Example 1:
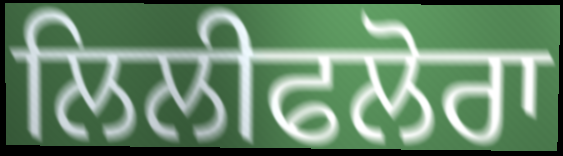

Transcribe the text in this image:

ਲਿਲੀਫਲੋਰਾ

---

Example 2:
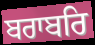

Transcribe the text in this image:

ਬਰਾਬਰਿ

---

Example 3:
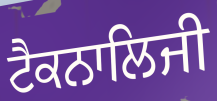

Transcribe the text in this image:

ਟੈਕਨਾਲਿਜੀ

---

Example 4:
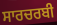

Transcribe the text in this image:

ਸਾਰਚਰਬੀ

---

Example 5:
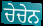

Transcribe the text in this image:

ਚੇਚੇਨ